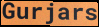
Gurjars